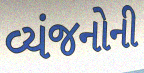
વ્યંજનોની